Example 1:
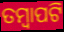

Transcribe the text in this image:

ତମ୍ବାପଟି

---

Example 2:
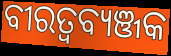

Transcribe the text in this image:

ବୀରତ୍ବବ୍ୟଞ୍ଜକ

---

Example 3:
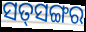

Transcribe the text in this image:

ସତ୍‌ସଙ୍ଗର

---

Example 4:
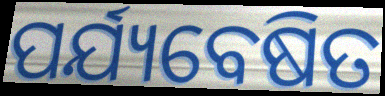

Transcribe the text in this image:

ପର୍ଯ୍ୟବେଷିତ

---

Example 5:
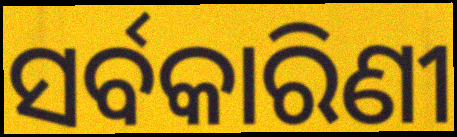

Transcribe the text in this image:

ସର୍ବକାରିଣୀ